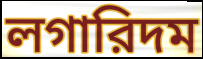
লগারিদম